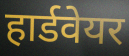
हार्डवेयर